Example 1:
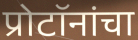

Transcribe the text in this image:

प्रोटॉनांचा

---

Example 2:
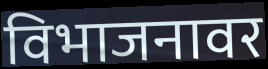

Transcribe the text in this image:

विभाजनावर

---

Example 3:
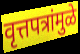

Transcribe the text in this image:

वृत्तपत्रांमुळे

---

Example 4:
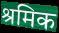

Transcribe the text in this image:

श्रमिक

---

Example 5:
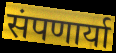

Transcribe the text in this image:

संपणार्या